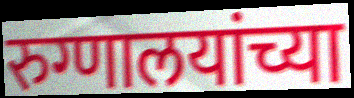
रुग्णालयांच्या